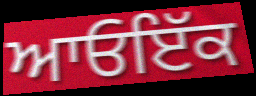
ਆਓਇੱਕ